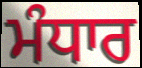
ਮੰਧਾਰ